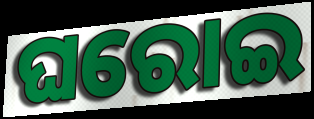
ଘରୋଇ